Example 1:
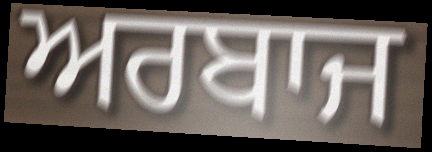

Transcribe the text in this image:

ਅਰਬਾਜ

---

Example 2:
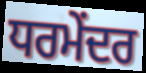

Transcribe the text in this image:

ਧਰਮੇਂਦਰ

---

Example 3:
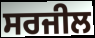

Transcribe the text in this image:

ਸਰਜੀਲ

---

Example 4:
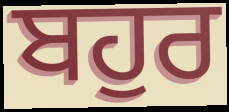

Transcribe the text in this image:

ਬਹੁਰ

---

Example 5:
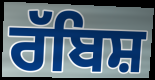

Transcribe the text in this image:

ਰੱਬਿਸ਼